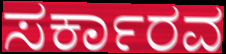
ಸರ್ಕಾರವ